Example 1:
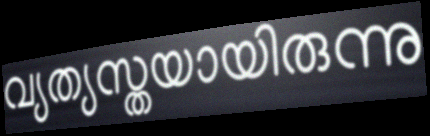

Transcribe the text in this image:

വ്യത്യസ്തയായിരുന്നു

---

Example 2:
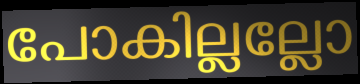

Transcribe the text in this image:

പോകില്ലല്ലോ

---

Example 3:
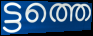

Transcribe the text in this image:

ട്ടത്തെ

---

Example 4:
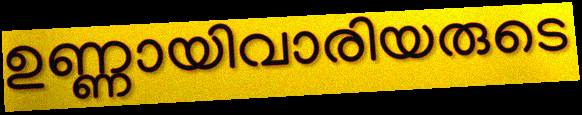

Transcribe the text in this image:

ഉണ്ണായിവാരിയരുടെ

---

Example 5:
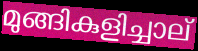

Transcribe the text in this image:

മുങ്ങികുളിച്ചാല്